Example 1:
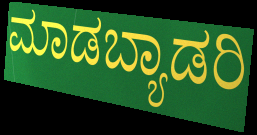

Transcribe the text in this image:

ಮಾಡಬ್ಯಾಡರಿ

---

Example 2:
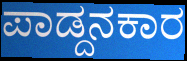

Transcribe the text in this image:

ಪಾಡ್ದನಕಾರ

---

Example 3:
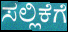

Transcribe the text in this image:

ಸಲ್ಲಿಕೆಗೆ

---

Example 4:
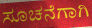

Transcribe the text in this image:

ಸೂಚನೆಗಾಗಿ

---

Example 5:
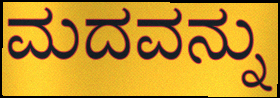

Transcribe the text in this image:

ಮದವನ್ನು